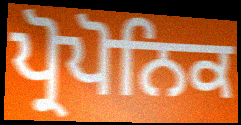
ਪ੍ਰੋਪੋਨਿਕ